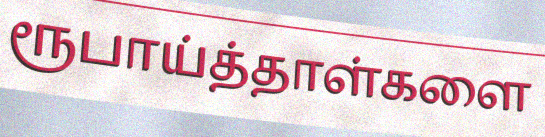
ரூபாய்த்தாள்களை